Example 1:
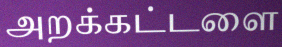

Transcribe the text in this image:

அறக்கட்டளை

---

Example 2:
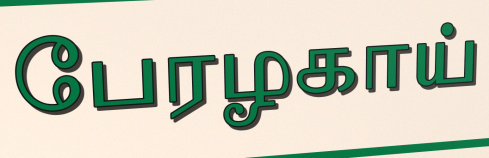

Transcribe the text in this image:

பேரழகாய்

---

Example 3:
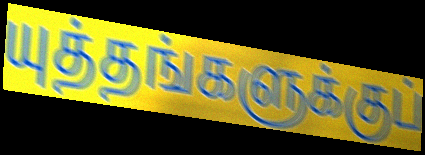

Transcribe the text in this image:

யுத்தங்களுக்குப்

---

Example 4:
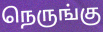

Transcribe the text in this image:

நெருங்கு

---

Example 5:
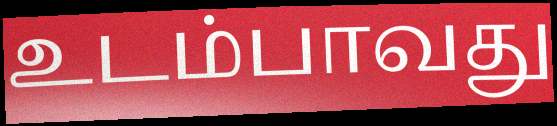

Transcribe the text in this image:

உடம்பாவது